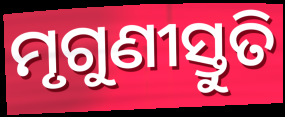
ମୃଗୁଣୀସ୍ତୁତି